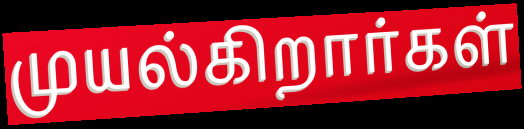
முயல்கிறார்கள்